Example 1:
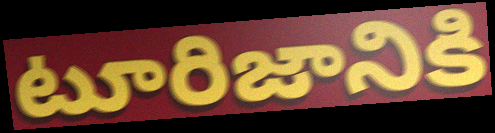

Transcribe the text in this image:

టూరిజానికి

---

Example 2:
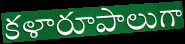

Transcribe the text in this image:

కళారూపాలుగా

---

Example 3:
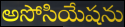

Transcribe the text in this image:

అసోసియేషను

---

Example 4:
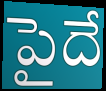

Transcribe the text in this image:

పైదే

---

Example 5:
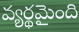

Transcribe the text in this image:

వ్యర్థమైంది